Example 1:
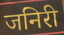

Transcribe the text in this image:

जनिरी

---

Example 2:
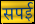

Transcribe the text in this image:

सपई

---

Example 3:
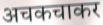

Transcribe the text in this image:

अचकचाकर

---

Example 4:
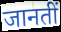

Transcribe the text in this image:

जानतीं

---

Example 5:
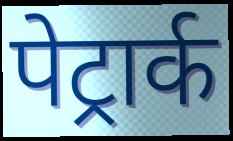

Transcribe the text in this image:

पेट्रार्क